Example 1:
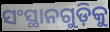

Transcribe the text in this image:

ସଂସ୍ଥାନଗୁଡ଼ିକୁ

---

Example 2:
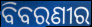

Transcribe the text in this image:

ବିବରଣୀର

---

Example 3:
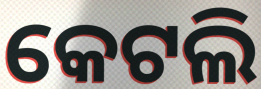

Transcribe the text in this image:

କେଟଲି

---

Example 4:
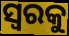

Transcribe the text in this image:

ସ୍ୱରକୁ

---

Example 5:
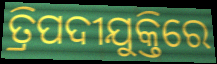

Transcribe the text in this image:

ତ୍ରିପଦୀଯୁକ୍ତିରେ